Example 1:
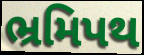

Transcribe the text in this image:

ભ્રમિપથ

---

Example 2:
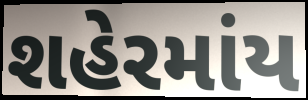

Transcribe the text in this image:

શહેરમાંય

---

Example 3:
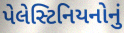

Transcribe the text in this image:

પેલેસ્ટિનિયનોનું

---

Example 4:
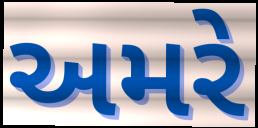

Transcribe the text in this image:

અમરે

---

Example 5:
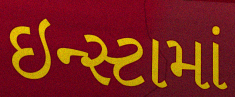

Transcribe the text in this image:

ઇન્સ્ટામાં